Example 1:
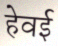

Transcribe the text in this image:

हेवई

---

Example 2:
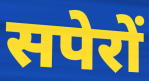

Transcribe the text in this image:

सपेरों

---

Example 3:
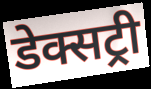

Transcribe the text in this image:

डेक्सट्री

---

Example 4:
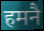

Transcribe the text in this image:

हमनै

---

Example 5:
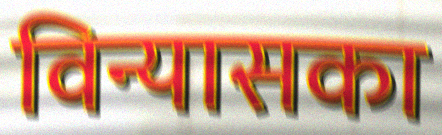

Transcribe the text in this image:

विन्यासका